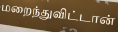
மறைந்துவிட்டான்